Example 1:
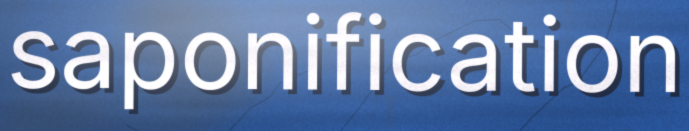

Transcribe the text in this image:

saponification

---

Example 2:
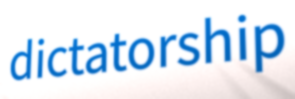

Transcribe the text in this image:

dictatorship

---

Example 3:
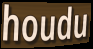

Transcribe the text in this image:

houdu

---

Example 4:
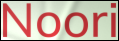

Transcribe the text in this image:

Noori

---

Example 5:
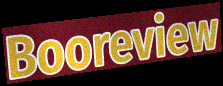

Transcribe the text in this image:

Booreview